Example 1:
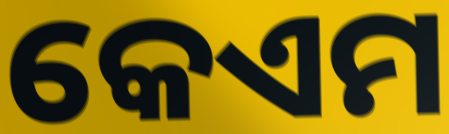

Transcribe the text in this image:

କେଏମ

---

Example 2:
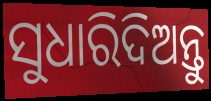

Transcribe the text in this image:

ସୁଧାରିଦିଅନ୍ତୁ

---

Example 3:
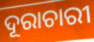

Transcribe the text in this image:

ଦୂରାଚାରୀ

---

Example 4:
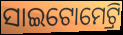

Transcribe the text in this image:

ସାଇଟୋମେଟ୍ରି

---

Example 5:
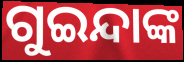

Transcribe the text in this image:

ଗୁଇନ୍ଦାଙ୍କ